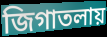
জিগাতলায়